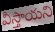
వీస్తాయని